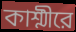
কাশ্মীরে